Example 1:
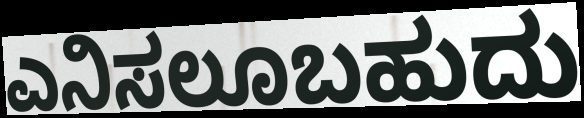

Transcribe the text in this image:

ಎನಿಸಲೂಬಹುದು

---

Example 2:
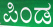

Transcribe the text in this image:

ಪಿಂಡ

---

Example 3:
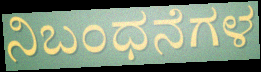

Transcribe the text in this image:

ನಿಬಂಧನೆಗಳ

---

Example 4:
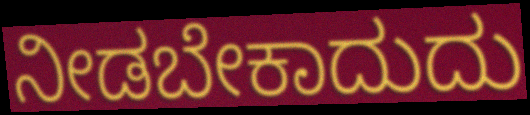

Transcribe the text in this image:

ನೀಡಬೇಕಾದುದು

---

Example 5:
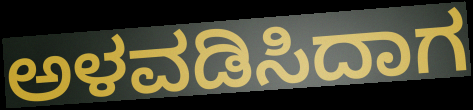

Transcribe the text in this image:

ಅಳವಡಿಸಿದಾಗ